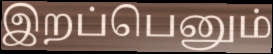
இறப்பெனும்